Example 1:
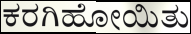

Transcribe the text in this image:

ಕರಗಿಹೋಯಿತು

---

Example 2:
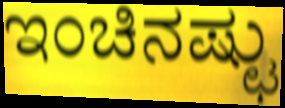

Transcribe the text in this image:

ಇಂಚಿನಷ್ಟು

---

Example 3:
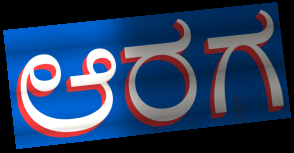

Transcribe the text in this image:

ಆರಗ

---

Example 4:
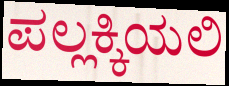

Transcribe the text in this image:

ಪಲ್ಲಕ್ಕಿಯಲಿ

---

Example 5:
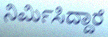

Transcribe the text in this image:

ನಿರ್ಮಿಸಿದ್ದಾರೆ